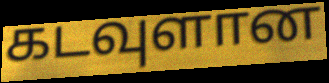
கடவுளான